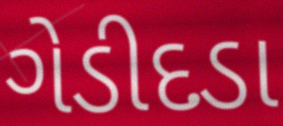
ગેડીદડા